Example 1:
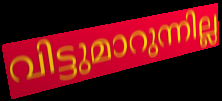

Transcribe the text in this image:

വിട്ടുമാറുന്നില്ല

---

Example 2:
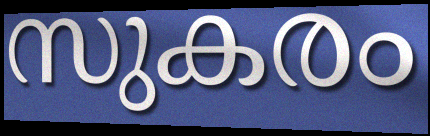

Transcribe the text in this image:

സുകരം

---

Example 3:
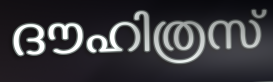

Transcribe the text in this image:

ദൗഹിത്രസ്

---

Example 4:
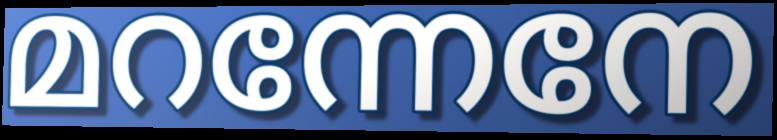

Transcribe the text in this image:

മറന്നേനേ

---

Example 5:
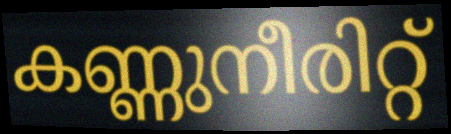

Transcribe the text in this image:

കണ്ണുനീരിറ്റ്